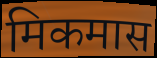
मिकमास